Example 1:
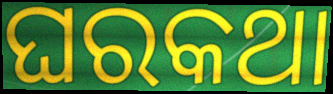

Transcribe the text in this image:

ଘରକଥା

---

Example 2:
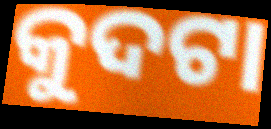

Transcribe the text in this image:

କୁଦଟା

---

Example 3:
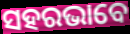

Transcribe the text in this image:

ସହରଭାବେ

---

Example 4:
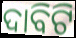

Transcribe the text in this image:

ଦାବିଟି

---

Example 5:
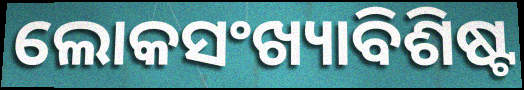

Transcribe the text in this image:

ଲୋକସଂଖ୍ୟାବିଶିଷ୍ଟ